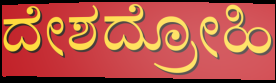
ದೇಶದ್ರೋಹಿ